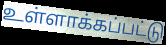
உள்ளாக்கப்பட்டு